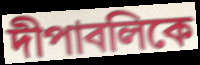
দীপাবলিকে